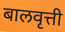
बालवृत्ती